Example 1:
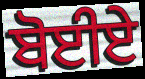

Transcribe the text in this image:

ਬੋਈਏ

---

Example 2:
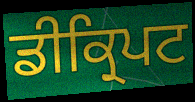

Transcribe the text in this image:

ਡੀਕ੍ਰਿਪਟ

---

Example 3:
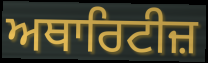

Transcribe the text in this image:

ਅਥਾਰਿਟੀਜ਼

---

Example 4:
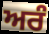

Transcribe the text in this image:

ਅਰੰ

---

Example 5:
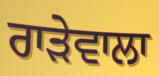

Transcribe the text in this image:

ਰਾੜੇਵਾਲਾ